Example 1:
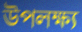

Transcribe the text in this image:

উপলক্ষ্য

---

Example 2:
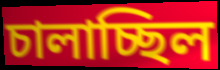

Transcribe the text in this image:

চালাচ্ছিল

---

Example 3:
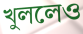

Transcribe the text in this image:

খুললেও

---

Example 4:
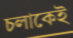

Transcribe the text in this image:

চলাকেই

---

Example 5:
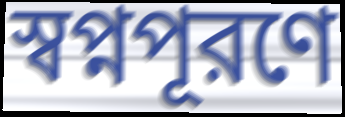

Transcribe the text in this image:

স্বপ্নপূরণে